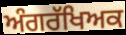
ਅੰਗਰੱਖਿਅਕ